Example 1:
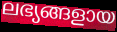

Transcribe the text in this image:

ലഭ്യങ്ങളായ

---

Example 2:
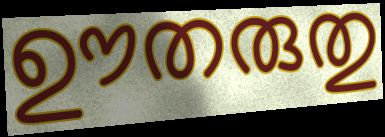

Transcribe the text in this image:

ഊതരുതു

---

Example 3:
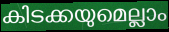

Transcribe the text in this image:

കിടക്കയുമെല്ലാം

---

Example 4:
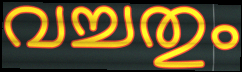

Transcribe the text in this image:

വച്ചതും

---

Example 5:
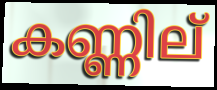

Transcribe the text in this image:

കണ്ണില്